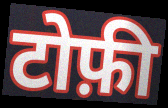
टोफ़ी